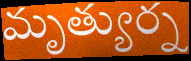
మృత్యుర్న